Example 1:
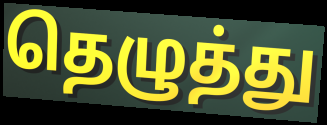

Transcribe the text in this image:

தெழுத்து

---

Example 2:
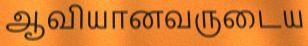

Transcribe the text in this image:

ஆவியானவருடைய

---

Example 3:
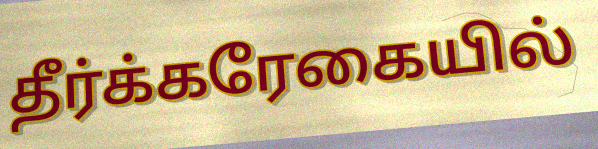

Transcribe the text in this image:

தீர்க்கரேகையில்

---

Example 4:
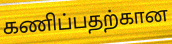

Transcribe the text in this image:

கணிப்பதற்கான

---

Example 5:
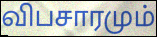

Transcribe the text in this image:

விபசாரமும்